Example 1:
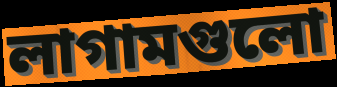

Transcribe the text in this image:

লাগামগুলো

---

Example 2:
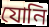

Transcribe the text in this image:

যোনি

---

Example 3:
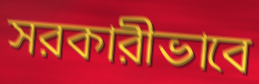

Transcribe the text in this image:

সরকারীভাবে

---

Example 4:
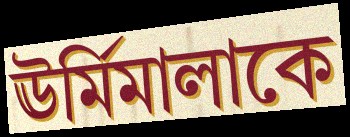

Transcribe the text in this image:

ঊর্মিমালাকে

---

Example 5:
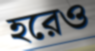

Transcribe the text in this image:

হরেও